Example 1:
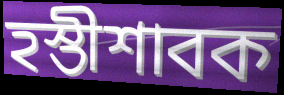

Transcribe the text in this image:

হস্তীশাবক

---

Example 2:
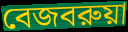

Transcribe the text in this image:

বেজবরুয়া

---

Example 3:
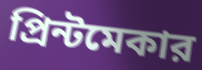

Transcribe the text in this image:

প্রিন্টমেকার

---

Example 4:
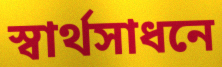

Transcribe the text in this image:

স্বার্থসাধনে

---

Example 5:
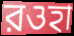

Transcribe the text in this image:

রওহা